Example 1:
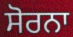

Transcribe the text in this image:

ਸੋਰਨਾ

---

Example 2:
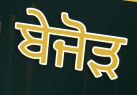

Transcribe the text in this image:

ਬੇਜੋੜ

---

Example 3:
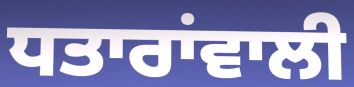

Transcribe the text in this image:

ਧਤਾਰਾਂਵਾਲੀ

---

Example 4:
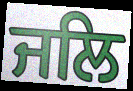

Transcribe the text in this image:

ਜਲਿ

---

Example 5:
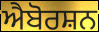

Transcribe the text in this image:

ਐਬੋਰਸ਼ਨ